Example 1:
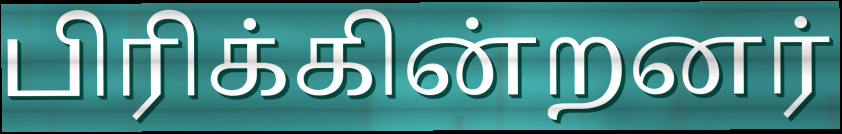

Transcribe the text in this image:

பிரிக்கின்றனர்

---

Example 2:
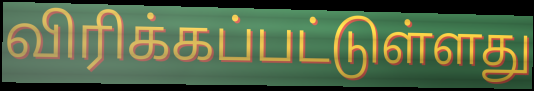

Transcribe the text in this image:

விரிக்கப்பட்டுள்ளது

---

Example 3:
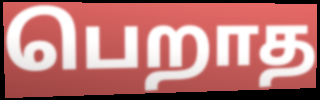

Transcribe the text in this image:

பெறாத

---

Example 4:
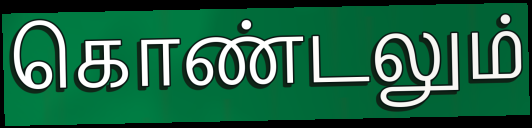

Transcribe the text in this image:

கொண்டலும்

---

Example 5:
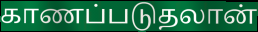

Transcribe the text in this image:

காணப்படுதலான்